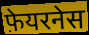
फ़ेयरनेस